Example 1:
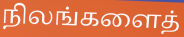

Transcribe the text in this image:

நிலங்களைத்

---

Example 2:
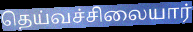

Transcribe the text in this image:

தெய்வச்சிலையார்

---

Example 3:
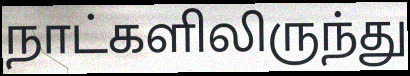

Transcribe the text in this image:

நாட்களிலிருந்து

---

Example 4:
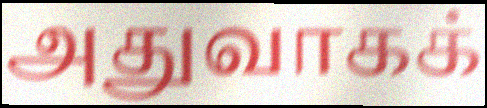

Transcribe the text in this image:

அதுவாகக்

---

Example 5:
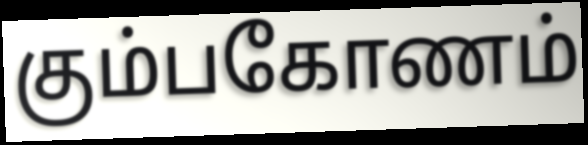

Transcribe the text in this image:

கும்பகோணம்